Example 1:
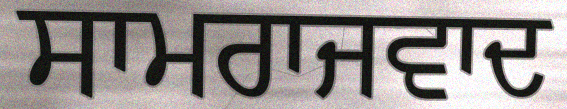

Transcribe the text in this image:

ਸਾਮਰਾਜਵਾਦ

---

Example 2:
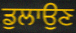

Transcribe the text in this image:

ਡੁਲਾਉਣ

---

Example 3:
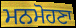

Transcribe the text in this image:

ਮਨਮੋਹਣਾ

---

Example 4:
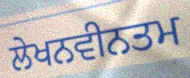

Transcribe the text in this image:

ਲੇਖਨਵੀਨਤਮ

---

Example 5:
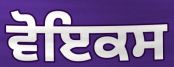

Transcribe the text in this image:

ਵੋਇਕਸ